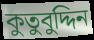
কুতুবুদ্দিন